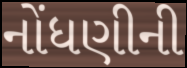
નોંધણીની